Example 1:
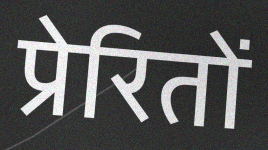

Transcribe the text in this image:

प्रेरितों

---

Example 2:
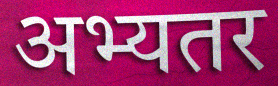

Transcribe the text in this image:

अभ्यतर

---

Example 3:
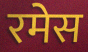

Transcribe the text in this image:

रमेस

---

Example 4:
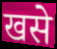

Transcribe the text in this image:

खसे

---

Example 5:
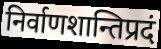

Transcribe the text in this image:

निर्वाणशान्तिप्रदं